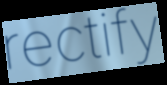
rectify